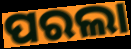
ପରଲା